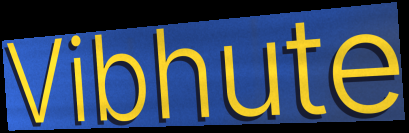
Vibhute